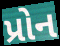
પ્રોન